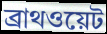
ব্রাথওয়েট